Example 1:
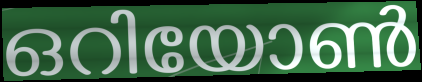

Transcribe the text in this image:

ഒറിയോൺ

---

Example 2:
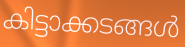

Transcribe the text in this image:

കിട്ടാക്കടങ്ങൾ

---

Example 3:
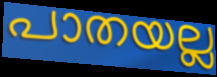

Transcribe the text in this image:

പാതയല്ല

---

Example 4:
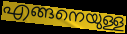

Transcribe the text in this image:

എങ്ങനെയുള്ള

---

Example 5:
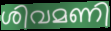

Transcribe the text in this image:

ശിവമണി